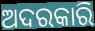
ଅଦରକାରି